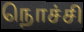
நொச்சி